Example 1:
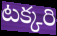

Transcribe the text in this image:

టక్కరి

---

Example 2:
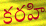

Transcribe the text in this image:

కరహి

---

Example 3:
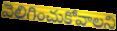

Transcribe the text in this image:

వెలిగించుకోవాలని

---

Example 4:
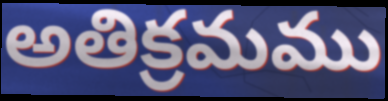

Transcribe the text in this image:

అతిక్రమము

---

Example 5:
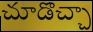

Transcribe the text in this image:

చూడొచ్చా